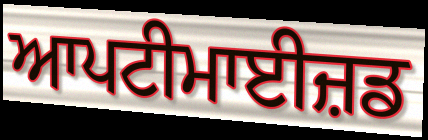
ਆਪਟੀਮਾਈਜ਼ਡ